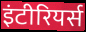
इंटीरियर्स